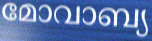
മോവാബ്യ